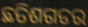
ଛତିଶଗଡର